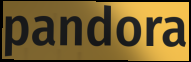
pandora